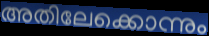
അതിലേക്കൊന്നും